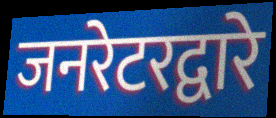
जनरेटरद्वारे